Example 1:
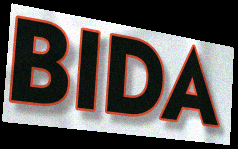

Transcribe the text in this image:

BIDA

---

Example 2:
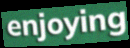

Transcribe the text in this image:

enjoying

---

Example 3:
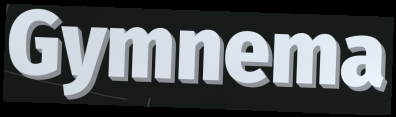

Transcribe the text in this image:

Gymnema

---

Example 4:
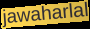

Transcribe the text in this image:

jawaharlal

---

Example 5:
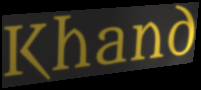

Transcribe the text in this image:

Khand